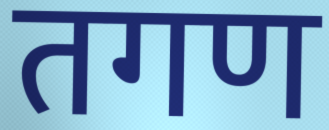
तगण